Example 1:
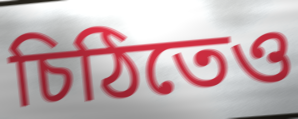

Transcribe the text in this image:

চিঠিতেও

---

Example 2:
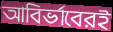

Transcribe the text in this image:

আবির্ভাবেরই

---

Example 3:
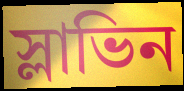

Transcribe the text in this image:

স্লাভিন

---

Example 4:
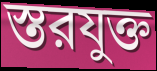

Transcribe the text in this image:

স্তরযুক্ত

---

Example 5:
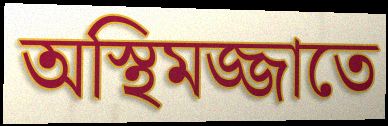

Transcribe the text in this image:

অস্থিমজ্জাতে